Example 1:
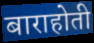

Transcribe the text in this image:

बाराहोती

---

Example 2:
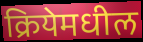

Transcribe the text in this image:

क्रियेमधील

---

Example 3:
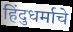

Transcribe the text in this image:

हिंदुधर्माचे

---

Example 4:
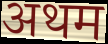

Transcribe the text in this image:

अथम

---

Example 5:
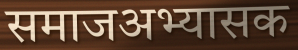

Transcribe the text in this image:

समाजअभ्यासक